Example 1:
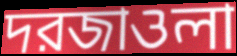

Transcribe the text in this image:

দরজাওলা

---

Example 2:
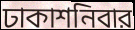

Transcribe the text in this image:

ঢাকাশনিবার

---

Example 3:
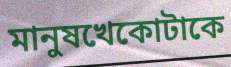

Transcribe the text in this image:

মানুষখেকোটাকে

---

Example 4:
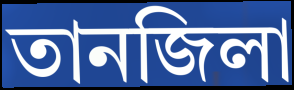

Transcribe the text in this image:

তানজিলা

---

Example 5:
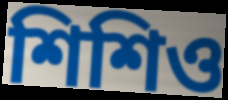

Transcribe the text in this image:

শিশিও